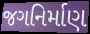
જગનિર્માણ